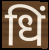
धिं